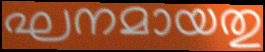
ഘനമായതു